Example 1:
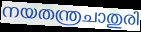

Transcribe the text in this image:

നയതന്ത്രചാതുരി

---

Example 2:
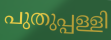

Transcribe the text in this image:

പുതുപ്പള്ളി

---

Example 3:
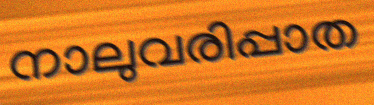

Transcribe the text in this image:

നാലുവരിപ്പാത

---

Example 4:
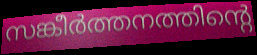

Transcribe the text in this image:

സങ്കീർത്തനത്തിന്റെ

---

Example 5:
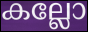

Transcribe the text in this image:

കല്ലോ